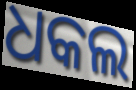
ଧକଲ